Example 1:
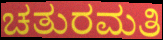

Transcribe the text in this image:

ಚತುರಮತಿ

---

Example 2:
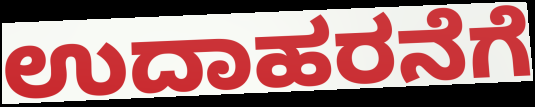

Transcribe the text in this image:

ಉದಾಹರನೆಗೆ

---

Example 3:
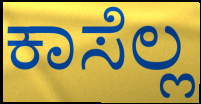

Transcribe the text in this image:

ಕಾಸೆಲ್ಲ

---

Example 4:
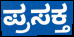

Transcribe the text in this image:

ಪ್ರಸಕ್ತ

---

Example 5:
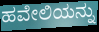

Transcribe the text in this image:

ಹವೇಲಿಯನ್ನು